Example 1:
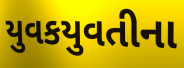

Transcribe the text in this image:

યુવકયુવતીના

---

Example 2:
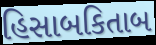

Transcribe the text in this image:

હિસાબકિતાબ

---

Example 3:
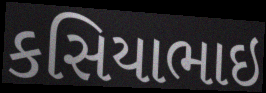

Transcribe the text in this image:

કસિયાભાઇ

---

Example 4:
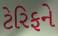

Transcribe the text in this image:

ટેરિફને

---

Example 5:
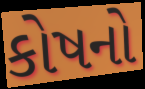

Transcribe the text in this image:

કોષનો